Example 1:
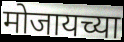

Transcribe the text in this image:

मोजायच्या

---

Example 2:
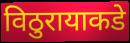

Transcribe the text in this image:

विठुरायाकडे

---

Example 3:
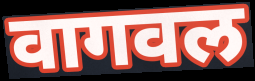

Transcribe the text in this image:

वागवल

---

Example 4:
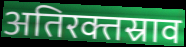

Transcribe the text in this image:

अतिरक्तस्राव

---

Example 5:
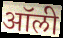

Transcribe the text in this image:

ऑली